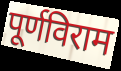
पूर्णविराम